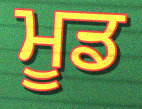
ਮੂਡ